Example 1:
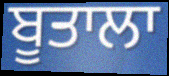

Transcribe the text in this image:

ਬੂਤਾਲਾ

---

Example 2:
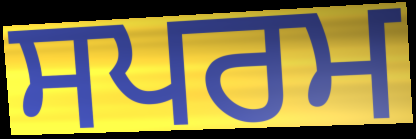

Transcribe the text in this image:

ਸਪਰਮ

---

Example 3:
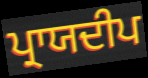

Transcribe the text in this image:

ਪ੍ਰਾਯਦੀਪ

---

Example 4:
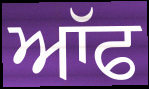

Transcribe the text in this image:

ਆੱਫ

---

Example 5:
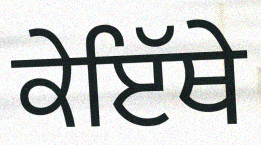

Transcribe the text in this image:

ਕੇਇੱਥੇ